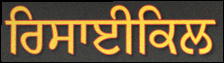
ਰਿਸਾਈਕਿਲ